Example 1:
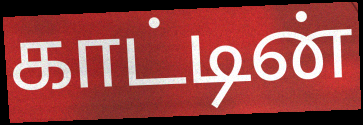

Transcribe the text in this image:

காட்டின்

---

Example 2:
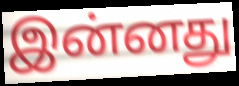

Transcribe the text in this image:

இன்னது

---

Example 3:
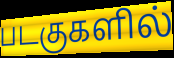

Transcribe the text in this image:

படகுகளில்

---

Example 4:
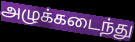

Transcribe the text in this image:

அழுக்கடைந்து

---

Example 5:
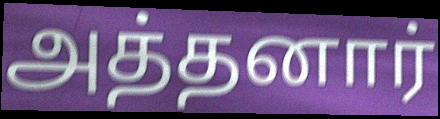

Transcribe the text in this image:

அத்தனார்